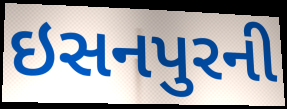
ઇસનપુરની